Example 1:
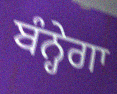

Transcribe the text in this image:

ਬੰਨ੍ਹੇਗਾ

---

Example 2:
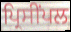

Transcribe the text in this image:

ਪ੍ਰਿਸੀਂਪਲ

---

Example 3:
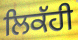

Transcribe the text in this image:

ਲਿਕੱਹੀ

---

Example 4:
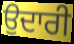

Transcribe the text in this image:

ਉਦਾਰੀ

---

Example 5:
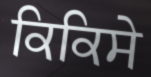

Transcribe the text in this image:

ਕਿਕਿਸੇ